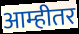
आम्हीतर